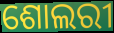
ଶୋଲରୀ